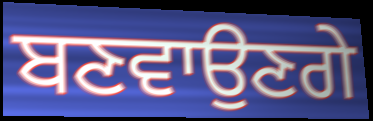
ਬਣਵਾਉਣਗੇ